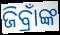
ଜିବ୍ରାଁଙ୍କ